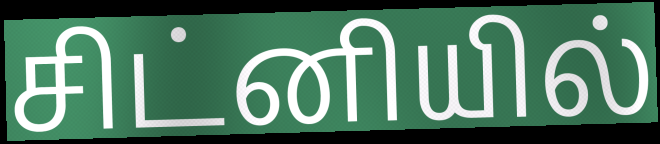
சிட்னியில்